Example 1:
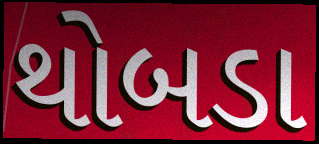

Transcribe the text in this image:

થોબડા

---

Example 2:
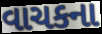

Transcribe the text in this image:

વાચકના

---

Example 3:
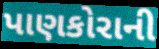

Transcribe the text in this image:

પાણકોરાની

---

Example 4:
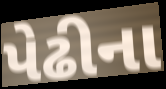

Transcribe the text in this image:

પેઢીના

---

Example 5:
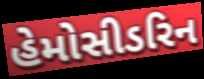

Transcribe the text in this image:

હેમોસીડરિન